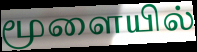
மூளையில்